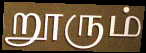
றூரும்